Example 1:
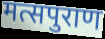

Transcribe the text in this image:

मत्सपुराण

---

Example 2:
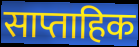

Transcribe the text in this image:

साप्ताहिक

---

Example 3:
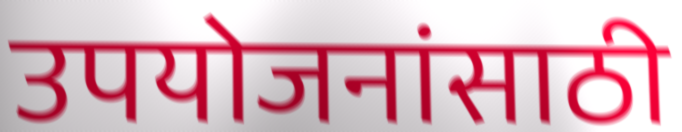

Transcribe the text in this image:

उपयोजनांसाठी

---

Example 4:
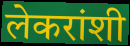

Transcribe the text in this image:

लेकरांशी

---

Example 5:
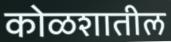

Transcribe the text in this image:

कोळशातील